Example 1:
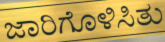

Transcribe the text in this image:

ಜಾರಿಗೊಳಿಸಿತು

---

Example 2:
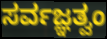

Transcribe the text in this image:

ಸರ್ವಜ್ಞತ್ವಂ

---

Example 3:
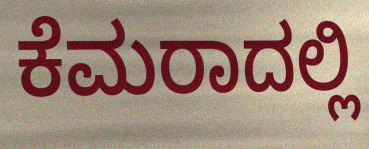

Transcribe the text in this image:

ಕೆಮರಾದಲ್ಲಿ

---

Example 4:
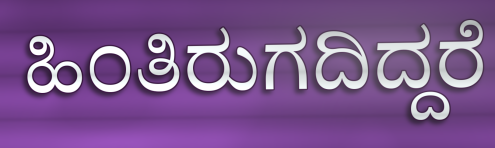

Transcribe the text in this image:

ಹಿಂತಿರುಗದಿದ್ದರೆ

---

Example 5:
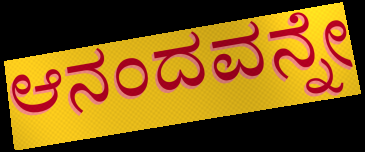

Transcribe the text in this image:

ಆನಂದವನ್ನೇ